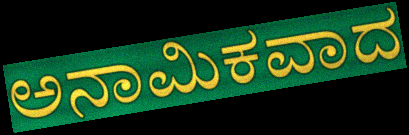
ಅನಾಮಿಕವಾದ